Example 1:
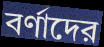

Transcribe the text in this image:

বর্ণাদের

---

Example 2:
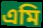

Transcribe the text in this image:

এমি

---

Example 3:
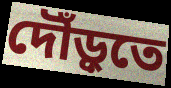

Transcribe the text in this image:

দৌঁড়ুতে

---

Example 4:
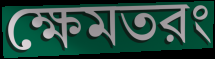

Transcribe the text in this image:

ক্ষেমতরং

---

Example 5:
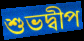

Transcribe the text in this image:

শুভদ্বীপ